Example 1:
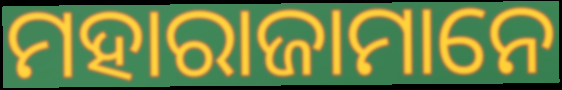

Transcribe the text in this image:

ମହାରାଜାମାନେ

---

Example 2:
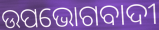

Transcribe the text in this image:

ଉପଭୋଗବାଦୀ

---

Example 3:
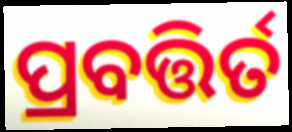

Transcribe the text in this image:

ପ୍ରବତ୍ତିର୍ତ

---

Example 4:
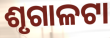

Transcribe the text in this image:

ଶୃଗାଳଟା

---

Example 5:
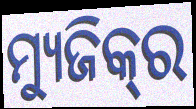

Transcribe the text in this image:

ମ୍ୟୁଜିକ୍‌ର